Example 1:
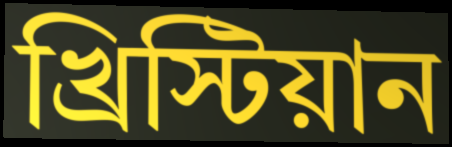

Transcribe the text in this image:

খ্রিস্টিয়ান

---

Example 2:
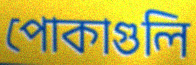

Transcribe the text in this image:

পোকাগুলি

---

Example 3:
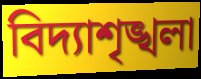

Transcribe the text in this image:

বিদ্যাশৃঙ্খলা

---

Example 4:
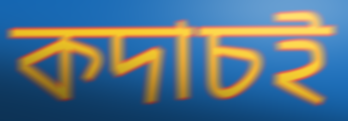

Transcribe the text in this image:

কদাচই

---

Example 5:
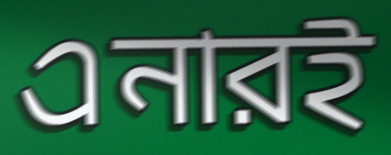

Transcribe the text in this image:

এনারই